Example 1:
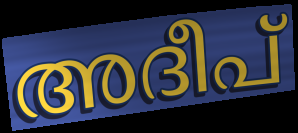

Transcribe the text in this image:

അദീപ്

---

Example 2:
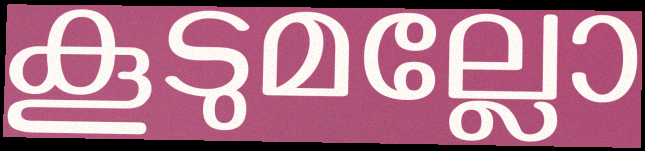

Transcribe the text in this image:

കൂടുമല്ലോ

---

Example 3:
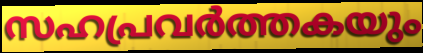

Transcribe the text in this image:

സഹപ്രവർത്തകയും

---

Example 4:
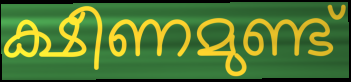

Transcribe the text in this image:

ക്ഷീണമുണ്ട്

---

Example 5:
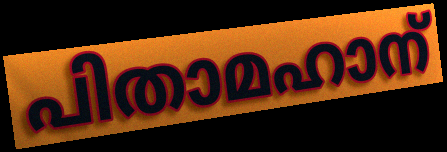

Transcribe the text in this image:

പിതാമഹാന്